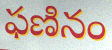
ఫణినం